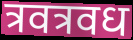
त्रवत्रवध